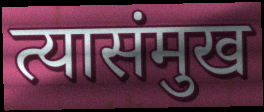
त्यासंमुख